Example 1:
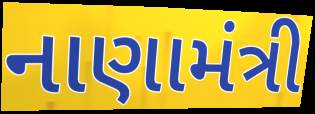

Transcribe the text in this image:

નાણામંત્રી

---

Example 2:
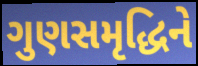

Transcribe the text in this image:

ગુણસમૃદ્ધિને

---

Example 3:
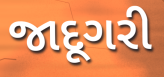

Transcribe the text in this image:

જાદૂગરી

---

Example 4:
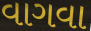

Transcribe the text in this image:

વાગવા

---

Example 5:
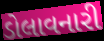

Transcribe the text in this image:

ડોલાવનારી